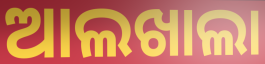
ଆଲଖାଲା